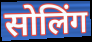
सोलिंग